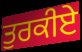
ਤੁਰਕੀਏ